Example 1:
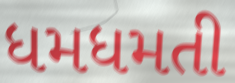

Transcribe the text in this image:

ધમધમતી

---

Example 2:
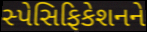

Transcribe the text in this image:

સ્પેસિફિકેશનને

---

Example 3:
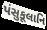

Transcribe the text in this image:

પંસુકૂલાનિ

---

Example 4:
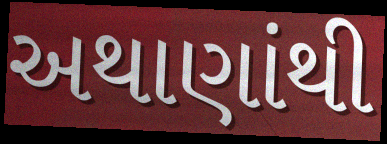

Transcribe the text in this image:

અથાણાંથી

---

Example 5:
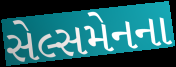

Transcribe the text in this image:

સેલ્સમેનના